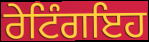
ਰੇਟਿੰਗਇਹ